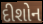
દીશોન